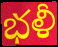
భళీ